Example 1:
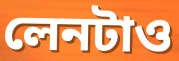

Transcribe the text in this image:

লেনটাও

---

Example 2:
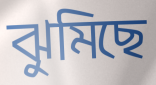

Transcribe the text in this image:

ঝুমিছে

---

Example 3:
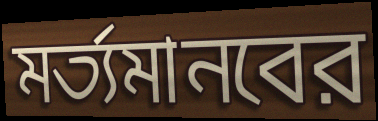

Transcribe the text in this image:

মর্ত্যমানবের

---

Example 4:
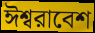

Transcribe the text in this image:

ঈশ্বরাবেশ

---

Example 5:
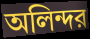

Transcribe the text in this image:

অলিন্দর